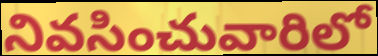
నివసించువారిలో